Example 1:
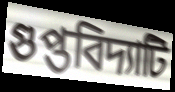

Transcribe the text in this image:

গুপ্তবিদ্যাটি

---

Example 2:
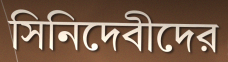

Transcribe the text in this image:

সিনিদেবীদের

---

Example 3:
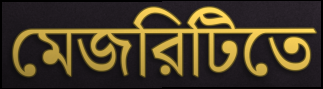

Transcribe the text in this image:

মেজরিটিতে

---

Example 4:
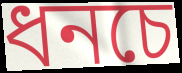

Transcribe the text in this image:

ধনচে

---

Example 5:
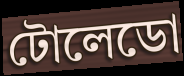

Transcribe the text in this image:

টোলেডো